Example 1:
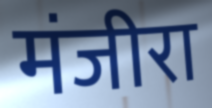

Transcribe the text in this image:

मंजीरा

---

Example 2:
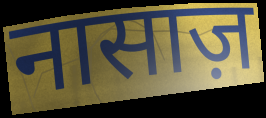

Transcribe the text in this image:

नासाज़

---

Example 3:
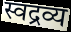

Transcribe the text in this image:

स्वद्रव्य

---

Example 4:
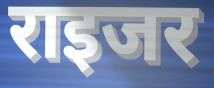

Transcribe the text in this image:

राइजर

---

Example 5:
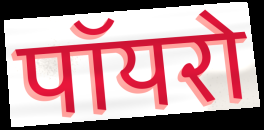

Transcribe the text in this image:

पॉयरो